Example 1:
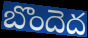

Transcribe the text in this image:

బొందెద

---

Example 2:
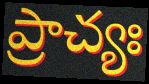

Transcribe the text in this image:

ప్రాచ్యః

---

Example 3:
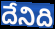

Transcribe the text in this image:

దేనిది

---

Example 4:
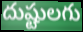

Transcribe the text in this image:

దుష్టులగు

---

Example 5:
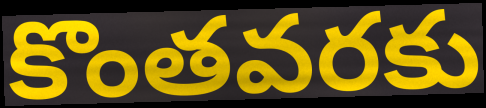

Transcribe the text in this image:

కొంతవరకు